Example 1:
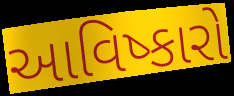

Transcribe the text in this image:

આવિષ્કારો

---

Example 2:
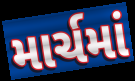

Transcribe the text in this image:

માર્ચમાં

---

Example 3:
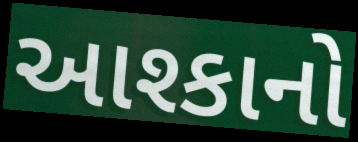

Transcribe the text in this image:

આશ્કાનો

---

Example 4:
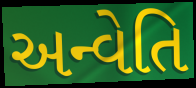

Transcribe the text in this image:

અન્વેતિ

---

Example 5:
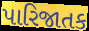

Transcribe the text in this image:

પારિજાતક